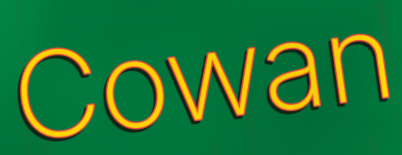
Cowan